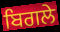
ਬਿਗਲੇ